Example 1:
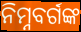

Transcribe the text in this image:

ନିମ୍ନବର୍ଗଙ୍କ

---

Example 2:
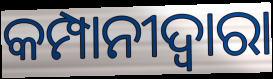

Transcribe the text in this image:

କମ୍ପାନୀଦ୍ୱାରା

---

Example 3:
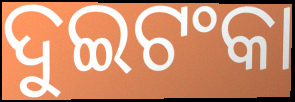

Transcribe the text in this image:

ଦୁଇଟଂକା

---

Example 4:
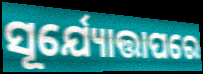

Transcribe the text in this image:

ସୂର୍ଯ୍ୟୋତ୍ତାପରେ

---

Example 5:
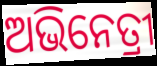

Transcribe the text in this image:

ଅଭିନେତ୍ରୀ